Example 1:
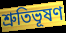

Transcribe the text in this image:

শ্রুতিভূষণ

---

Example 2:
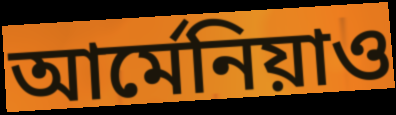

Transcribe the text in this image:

আর্মেনিয়াও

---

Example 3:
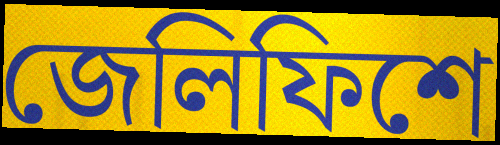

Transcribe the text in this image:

জেলিফিশে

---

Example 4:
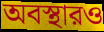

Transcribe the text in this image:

অবস্থারও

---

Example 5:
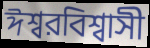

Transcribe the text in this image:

ঈশ্বরবিশ্বাসী